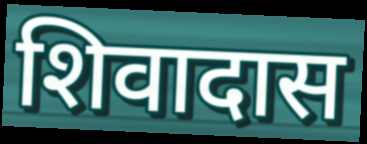
शिवादास